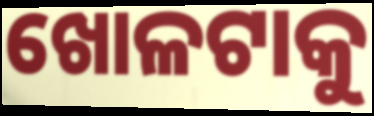
ଖୋଳଟାକୁ